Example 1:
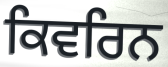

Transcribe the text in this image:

ਕਿਵਰਿਨ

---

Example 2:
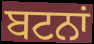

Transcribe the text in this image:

ਬਟਨਾਂ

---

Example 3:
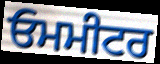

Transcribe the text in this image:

ਓਮਮੀਟਰ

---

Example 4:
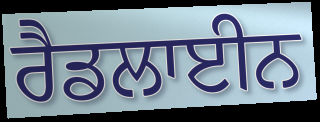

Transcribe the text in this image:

ਰੈਡਲਾਈਨ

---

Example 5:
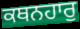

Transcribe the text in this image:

ਕਥਨਹਾਰੁ